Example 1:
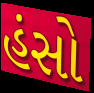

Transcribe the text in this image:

હંસો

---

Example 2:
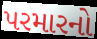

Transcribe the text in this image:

પરમારનો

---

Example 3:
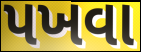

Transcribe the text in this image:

પખવા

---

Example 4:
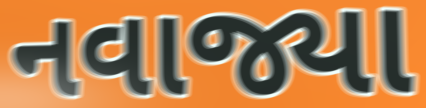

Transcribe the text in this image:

નવાજ્યા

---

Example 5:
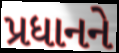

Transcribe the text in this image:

પ્રધાનને